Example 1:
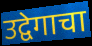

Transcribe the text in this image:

उद्वेगाचा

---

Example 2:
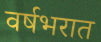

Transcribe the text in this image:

वर्षभरात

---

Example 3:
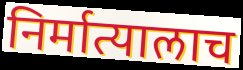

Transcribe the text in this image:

निर्मात्यालाच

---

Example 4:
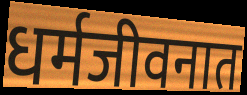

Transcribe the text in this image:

धर्मजीवनात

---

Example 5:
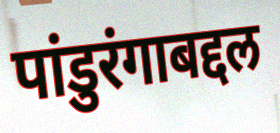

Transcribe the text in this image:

पांडुरंगाबद्दल